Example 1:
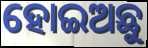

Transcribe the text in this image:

ହୋଇଅଛୁ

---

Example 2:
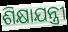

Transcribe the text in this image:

ଶିକ୍ଷାଯନ୍ତ୍ରୀ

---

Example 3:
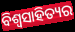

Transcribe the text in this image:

ବିଶ୍ଵସାହିତ୍ୟର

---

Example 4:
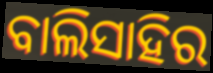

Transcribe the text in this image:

ବାଲିସାହିର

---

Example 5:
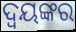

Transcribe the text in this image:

ଦ୍ବୟଙ୍କର